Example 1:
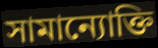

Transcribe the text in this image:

সামান্যোক্তি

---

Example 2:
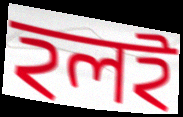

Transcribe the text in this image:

হলই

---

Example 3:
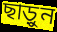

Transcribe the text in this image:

ছাড়ুন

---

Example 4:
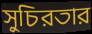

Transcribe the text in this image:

সুচিরতার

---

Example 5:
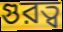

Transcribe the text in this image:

গুরত্ব